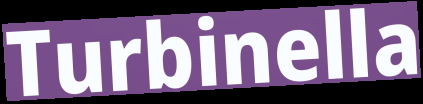
Turbinella